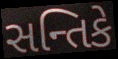
સન્તિકે